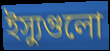
ইস্যুগুলো